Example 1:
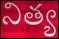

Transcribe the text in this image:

నిత్య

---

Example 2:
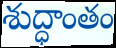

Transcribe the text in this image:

శుద్ధాంతం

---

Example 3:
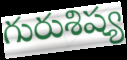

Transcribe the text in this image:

గురుశిష్య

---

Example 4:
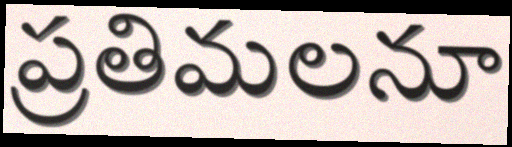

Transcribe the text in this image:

ప్రతిమలనూ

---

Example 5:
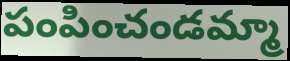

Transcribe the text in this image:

పంపించండమ్మా